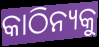
କାଠିନ୍ୟକୁ